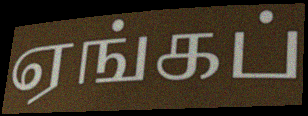
ஏங்கப்